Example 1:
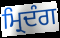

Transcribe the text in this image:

ਮ੍ਰਿਦੰਗ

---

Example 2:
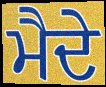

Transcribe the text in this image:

ਮੈਦੇ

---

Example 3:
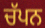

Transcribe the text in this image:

ਚੱਪਨ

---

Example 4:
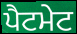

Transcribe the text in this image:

ਪੈਟਮੇਟ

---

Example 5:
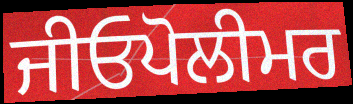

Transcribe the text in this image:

ਜੀਓਪੋਲੀਮਰ